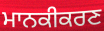
ਮਾਨਕੀਕਰਣ